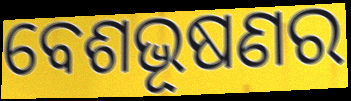
ବେଶଭୂଷଣର